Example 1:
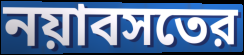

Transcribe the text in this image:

নয়াবসতের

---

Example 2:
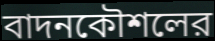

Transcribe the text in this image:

বাদনকৌশলের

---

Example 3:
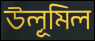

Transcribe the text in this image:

উলূমিল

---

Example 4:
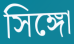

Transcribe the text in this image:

সিঙ্গো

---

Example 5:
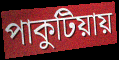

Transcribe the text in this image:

পাকুটিয়ায়